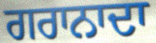
ਗਰਾਨਾਦਾ